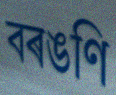
বৰঙণি